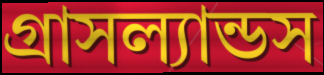
গ্রাসল্যান্ডস